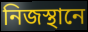
নিজস্থানে